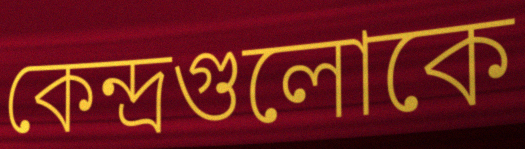
কেন্দ্রগুলোকে